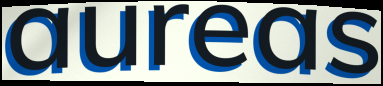
aureas